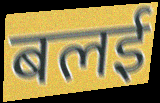
बलई